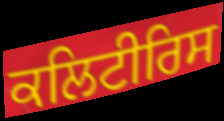
ਕਲਿਟੀਰਿਸ